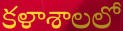
కళాశాలలో